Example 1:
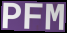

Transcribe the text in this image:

PFM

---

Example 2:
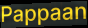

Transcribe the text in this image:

Pappaan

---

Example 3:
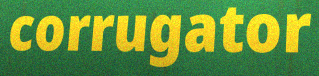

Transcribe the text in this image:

corrugator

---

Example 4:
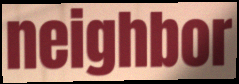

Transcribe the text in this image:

neighbor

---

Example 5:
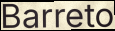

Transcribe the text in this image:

Barreto